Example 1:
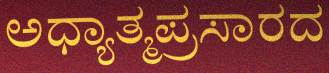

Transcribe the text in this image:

ಅಧ್ಯಾತ್ಮಪ್ರಸಾರದ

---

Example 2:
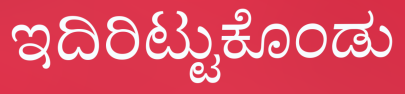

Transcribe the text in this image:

ಇದಿರಿಟ್ಟುಕೊಂಡು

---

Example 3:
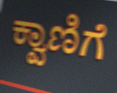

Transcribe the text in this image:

ಕ್ವಾಣಿಗೆ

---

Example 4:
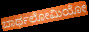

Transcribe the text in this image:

ಬಾರ್ಥಲೋಮಿಯೋ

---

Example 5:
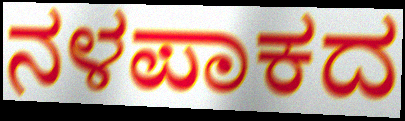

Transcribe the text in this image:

ನಳಪಾಕದ